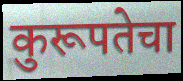
कुरूपतेचा